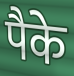
पैके